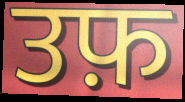
उफ़